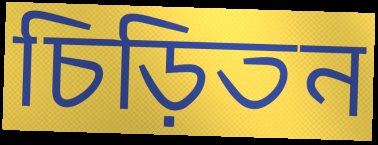
চিড়িতন